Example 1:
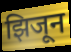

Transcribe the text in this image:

झिजून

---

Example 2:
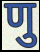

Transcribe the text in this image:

णु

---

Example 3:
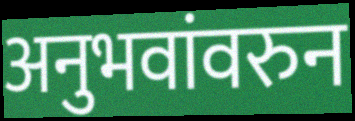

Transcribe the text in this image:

अनुभवांवरुन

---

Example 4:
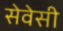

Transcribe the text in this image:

सेवेसी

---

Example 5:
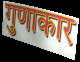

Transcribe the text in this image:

गुणाकार